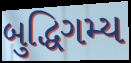
બુદ્ધિગમ્ય